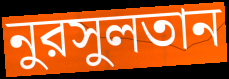
নুরসুলতান